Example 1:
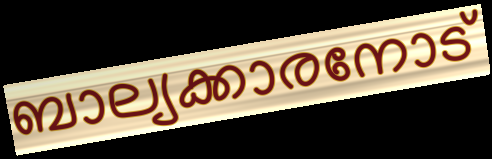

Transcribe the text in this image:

ബാല്യക്കാരനോട്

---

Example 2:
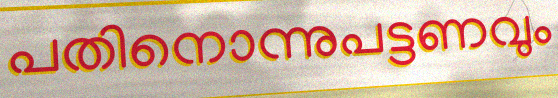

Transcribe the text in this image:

പതിനൊന്നുപട്ടണവും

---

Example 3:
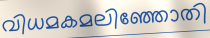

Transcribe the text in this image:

വിധമകമലിഞ്ഞോതി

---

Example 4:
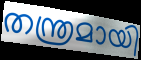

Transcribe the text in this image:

തന്ത്രമായി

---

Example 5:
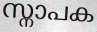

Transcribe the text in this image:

സ്നാപക